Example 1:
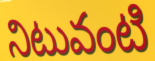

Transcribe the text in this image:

నిటువంటి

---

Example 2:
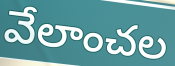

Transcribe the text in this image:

వేలాంచల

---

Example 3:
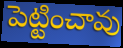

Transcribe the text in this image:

పెట్టించావు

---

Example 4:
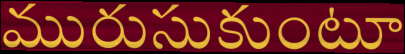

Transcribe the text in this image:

మురుసుకుంటూ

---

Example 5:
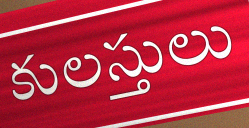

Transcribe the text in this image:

కులస్తులు